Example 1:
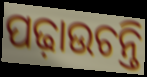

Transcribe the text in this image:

ପଢ଼ାଉଚନ୍ତି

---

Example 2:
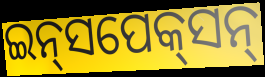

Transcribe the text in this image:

ଇନ୍‌ସପେକ୍‌ସନ୍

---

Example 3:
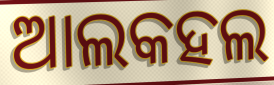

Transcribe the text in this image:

ଆଲକହଲ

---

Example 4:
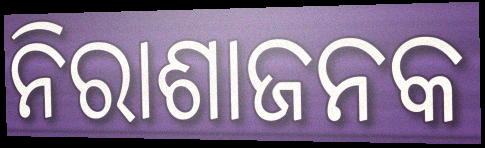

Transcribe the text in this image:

ନିରାଶାଜନକ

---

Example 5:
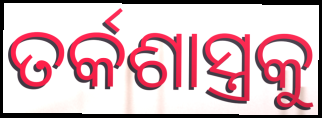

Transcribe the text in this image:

ତର୍କଶାସ୍ତ୍ରକୁ